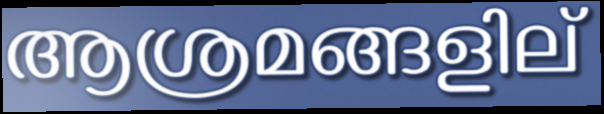
ആശ്രമങ്ങളില്